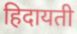
हिदायती